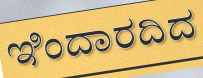
ಇಿಂದಾರದಿದ